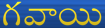
గవాయి